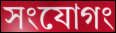
সংযোগং